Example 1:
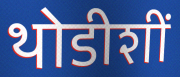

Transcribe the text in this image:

थोडीशीं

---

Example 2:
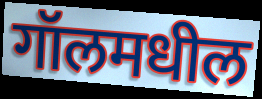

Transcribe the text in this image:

गॉलमधील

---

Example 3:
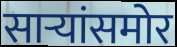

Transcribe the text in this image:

साऱ्यांसमोर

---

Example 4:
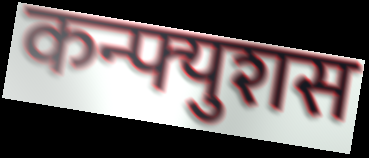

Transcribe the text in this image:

कन्फ्युशस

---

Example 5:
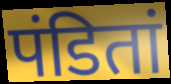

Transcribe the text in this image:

पंडितां